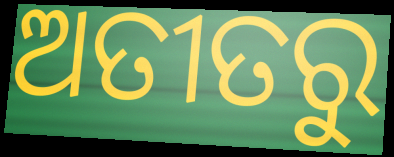
ଅତୀତରୁ